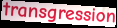
transgression